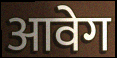
आवेग